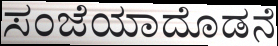
ಸಂಜೆಯಾದೊಡನೆ